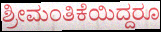
ಶ್ರೀಮಂತಿಕೆಯಿದ್ದರೂ